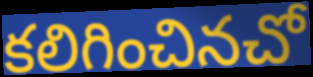
కలిగించినచో